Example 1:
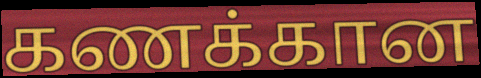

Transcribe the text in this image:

கணக்கான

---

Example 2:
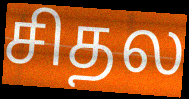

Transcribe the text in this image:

சிதல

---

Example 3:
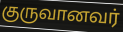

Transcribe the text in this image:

குருவானவர்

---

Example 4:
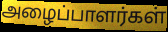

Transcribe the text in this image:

அழைப்பாளர்கள்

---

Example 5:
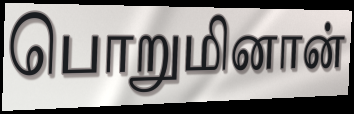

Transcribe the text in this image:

பொறுமினான்